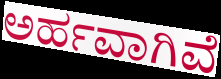
ಅರ್ಹವಾಗಿವೆ